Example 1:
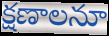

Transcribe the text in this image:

క్షణాలనూ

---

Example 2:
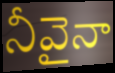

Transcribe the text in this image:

నీవైనా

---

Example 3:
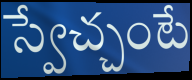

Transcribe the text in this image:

స్వేచ్చంటే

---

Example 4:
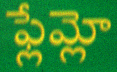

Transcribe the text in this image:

ఫ్లేమ్లో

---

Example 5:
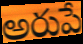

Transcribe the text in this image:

అరుపే